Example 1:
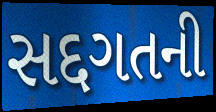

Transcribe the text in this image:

સદ્દગતની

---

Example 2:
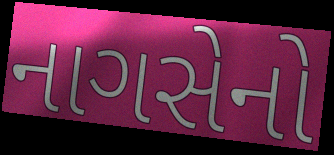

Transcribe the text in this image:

નાગસેનો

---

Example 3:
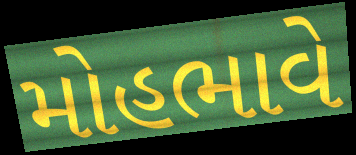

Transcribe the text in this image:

મોહભાવે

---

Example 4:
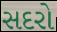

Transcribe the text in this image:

સદરો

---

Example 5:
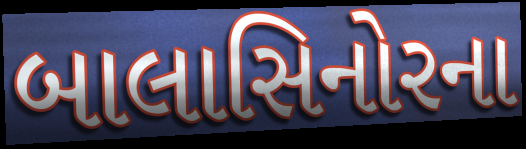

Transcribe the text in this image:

બાલાસિનોરના